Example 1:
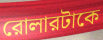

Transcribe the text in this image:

রোলারটাকে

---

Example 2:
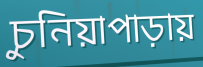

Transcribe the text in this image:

চুনিয়াপাড়ায়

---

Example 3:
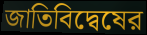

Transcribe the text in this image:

জাতিবিদ্বেষের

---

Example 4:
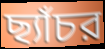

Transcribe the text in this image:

ছ্যাঁচর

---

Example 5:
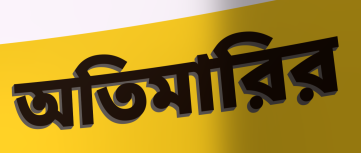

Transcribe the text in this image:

অতিমারির